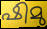
ഷിമു